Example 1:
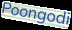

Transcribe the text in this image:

Poongodi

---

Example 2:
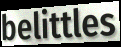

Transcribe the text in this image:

belittles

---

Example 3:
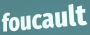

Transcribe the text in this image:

foucault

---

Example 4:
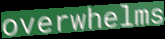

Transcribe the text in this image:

overwhelms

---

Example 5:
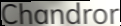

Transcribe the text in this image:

Chandror